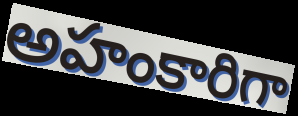
అహంకారిగా